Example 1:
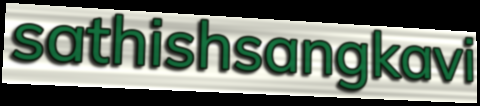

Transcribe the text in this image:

sathishsangkavi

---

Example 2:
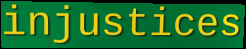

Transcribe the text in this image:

injustices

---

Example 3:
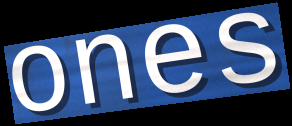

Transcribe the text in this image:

ones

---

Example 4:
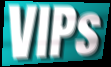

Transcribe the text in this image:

VIPs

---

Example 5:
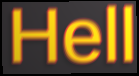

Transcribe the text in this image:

Hell